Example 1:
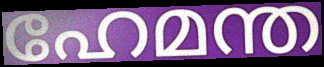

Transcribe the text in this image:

ഹേമന്ത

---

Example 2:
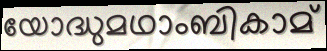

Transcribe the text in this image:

യോദ്ധുമഥാംബികാമ്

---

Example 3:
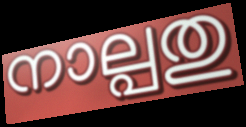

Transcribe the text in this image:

നാല്പതു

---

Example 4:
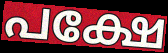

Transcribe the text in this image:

പക്ഷേ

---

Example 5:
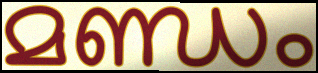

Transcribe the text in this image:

മണ്ഡം